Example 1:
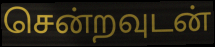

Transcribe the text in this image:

சென்றவுடன்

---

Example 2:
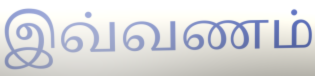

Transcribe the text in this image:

இவ்வணம்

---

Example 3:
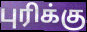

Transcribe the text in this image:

புரிக்கு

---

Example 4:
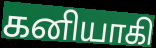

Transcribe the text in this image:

கனியாகி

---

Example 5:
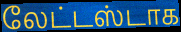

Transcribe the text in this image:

லேட்டஸ்டாக